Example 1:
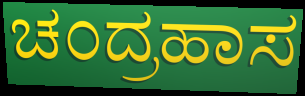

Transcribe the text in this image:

ಚಂದ್ರಹಾಸ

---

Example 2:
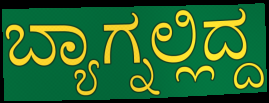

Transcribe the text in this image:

ಬ್ಯಾಗ್ನಲ್ಲಿದ್ದ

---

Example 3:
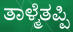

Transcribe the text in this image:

ತಾಳ್ಮೆತಪ್ಪಿ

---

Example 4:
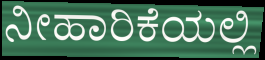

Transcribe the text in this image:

ನೀಹಾರಿಕೆಯಲ್ಲಿ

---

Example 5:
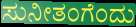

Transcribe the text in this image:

ಸುನೀತಂಗೆಂದು